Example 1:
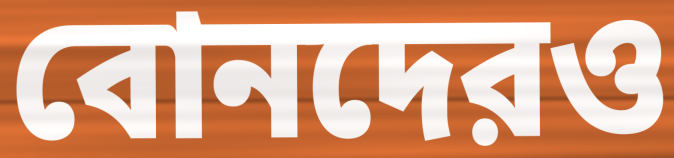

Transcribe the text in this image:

বোনদেরও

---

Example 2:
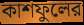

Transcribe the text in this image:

কাশফুলের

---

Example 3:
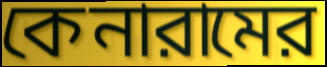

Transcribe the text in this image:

কেনারামের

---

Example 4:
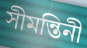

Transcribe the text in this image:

সীমন্তিনী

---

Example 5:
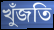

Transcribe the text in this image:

খুঁজতি